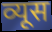
व्यूस